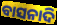
ବାସନାଦି